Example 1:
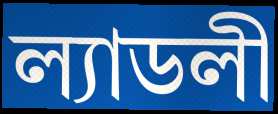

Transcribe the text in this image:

ল্যাডলী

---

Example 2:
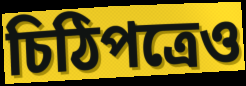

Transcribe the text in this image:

চিঠিপত্রেও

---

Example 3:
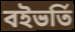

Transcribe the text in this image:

বইভর্তি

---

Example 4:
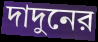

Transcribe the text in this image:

দাদুনের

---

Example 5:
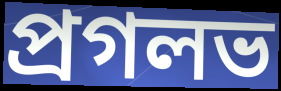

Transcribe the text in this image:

প্রগলভ